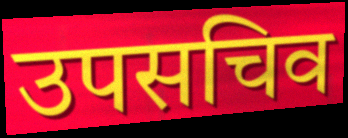
उपसचिव